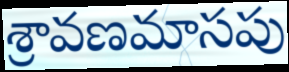
శ్రావణమాసపు